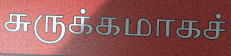
சுருக்கமாகச்